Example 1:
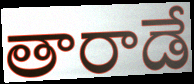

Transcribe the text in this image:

తారాడే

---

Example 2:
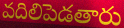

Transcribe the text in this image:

వదిలిపెడతారు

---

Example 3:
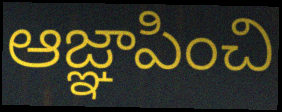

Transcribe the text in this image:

ఆజ్ఞాపించి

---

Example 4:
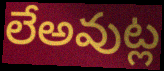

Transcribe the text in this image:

లేఅవుట్ల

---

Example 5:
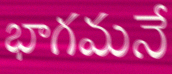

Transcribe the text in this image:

భాగమనే